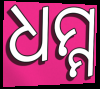
ଧମ୍ମ